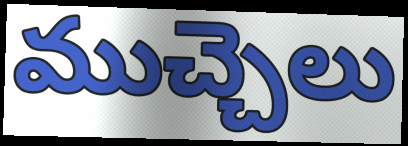
ముచ్చెలు